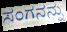
ಸಂಗನನ್ನು